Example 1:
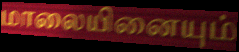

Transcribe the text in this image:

மாலையினையும்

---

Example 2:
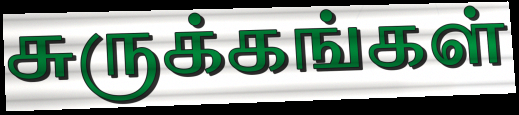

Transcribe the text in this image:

சுருக்கங்கள்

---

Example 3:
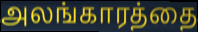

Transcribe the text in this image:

அலங்காரத்தை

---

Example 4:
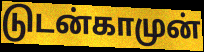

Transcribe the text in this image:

டுடன்காமுன்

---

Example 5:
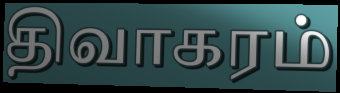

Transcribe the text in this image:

திவாகரம்